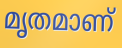
മൃതമാണ്